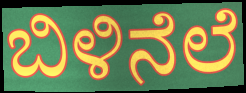
ಬಿಳಿನೆಲೆ